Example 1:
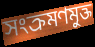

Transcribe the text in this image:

সংক্রমণমুক্ত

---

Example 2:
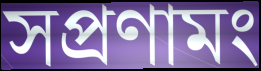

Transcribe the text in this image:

সপ্রণামং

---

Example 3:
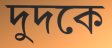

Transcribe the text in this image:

দুদকে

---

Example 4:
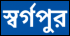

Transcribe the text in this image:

স্বর্গপুর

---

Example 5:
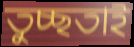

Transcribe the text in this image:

তুচ্ছতাই